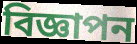
বিজ্ঞাপন